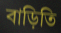
বাড়িতি